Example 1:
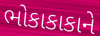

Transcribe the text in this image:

ભોકાકાકાને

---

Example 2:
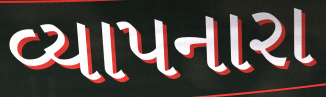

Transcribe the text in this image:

વ્યાપનારા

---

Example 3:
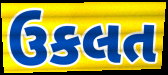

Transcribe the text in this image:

ઉકલત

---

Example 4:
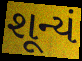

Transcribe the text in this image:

શૂન્યં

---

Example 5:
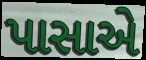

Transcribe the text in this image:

પાસાએ